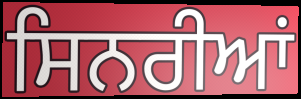
ਸਿਨਰੀਆਂ